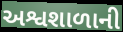
અશ્વશાળાની